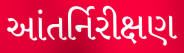
આંતર્નિરીક્ષણ